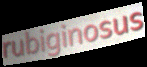
rubiginosus